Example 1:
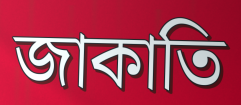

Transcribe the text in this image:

জাকাতি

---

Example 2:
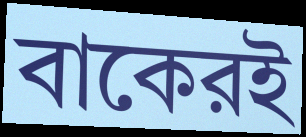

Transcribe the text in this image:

বাকেরই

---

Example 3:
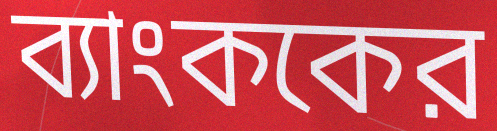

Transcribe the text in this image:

ব্যাংককের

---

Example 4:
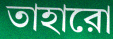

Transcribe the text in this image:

তাহারো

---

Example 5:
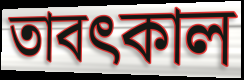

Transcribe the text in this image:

তাবৎকাল